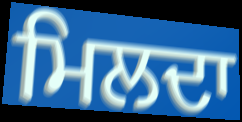
ਮਿਲਦਾ